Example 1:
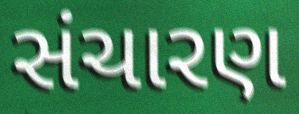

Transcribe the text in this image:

સંચારણ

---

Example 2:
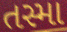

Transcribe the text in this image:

તસ્મા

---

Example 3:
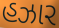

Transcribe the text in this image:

હઝાર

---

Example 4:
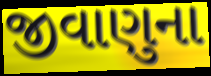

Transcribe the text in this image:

જીવાણુના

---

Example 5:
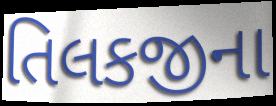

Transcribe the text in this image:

તિલકજીના